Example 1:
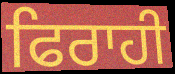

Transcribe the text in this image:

ਫਿਰਾਹੀ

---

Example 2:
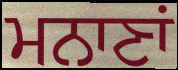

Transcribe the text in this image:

ਮਨਾਣਾਂ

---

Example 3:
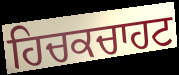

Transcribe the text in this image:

ਹਿਚਕਚਾਹਟ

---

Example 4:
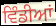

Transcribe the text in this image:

ਵਿੰਡੀਆਂ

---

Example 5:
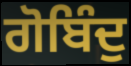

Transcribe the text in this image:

ਗੋਬਿੰਦੁ